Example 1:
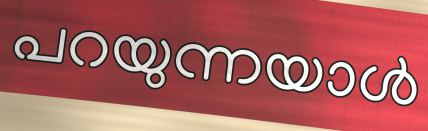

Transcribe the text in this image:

പറയുന്നയാൾ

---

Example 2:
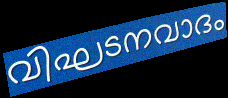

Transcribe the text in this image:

വിഘടനവാദം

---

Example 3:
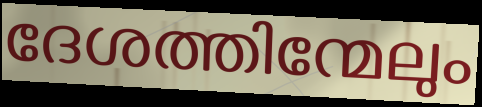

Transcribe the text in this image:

ദേശത്തിന്മേലും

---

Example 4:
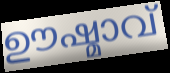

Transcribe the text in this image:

ഊഷ്മാവ്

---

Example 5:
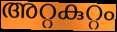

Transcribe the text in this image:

അറ്റകുറ്റം